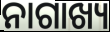
ନାଗାଖ୍ୟ